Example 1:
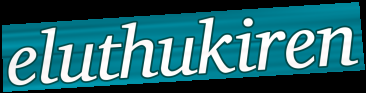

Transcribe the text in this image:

eluthukiren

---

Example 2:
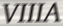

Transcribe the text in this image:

VIIIA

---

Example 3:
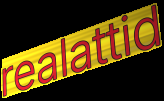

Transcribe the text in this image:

realattid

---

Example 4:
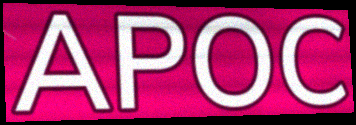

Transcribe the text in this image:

APOC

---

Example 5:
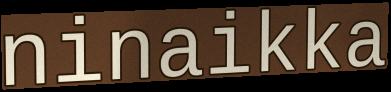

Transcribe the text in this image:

ninaikka